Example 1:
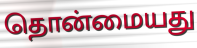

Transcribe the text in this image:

தொன்மையது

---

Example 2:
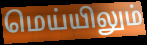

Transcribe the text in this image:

மெய்யிலும்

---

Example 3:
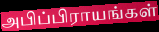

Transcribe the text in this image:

அபிப்பிராயங்கள்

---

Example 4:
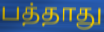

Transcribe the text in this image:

பத்தாது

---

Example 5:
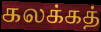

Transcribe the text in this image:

கலக்கத்